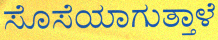
ಸೊಸೆಯಾಗುತ್ತಾಳೆ